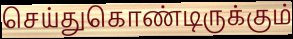
செய்துகொண்டிருக்கும்